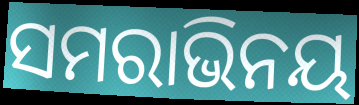
ସମରାଭିନୟ